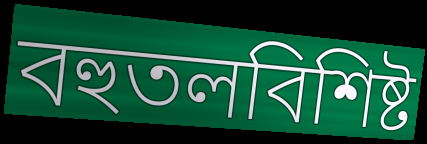
বহুতলবিশিষ্ট